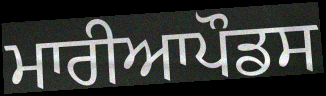
ਮਾਰੀਆਪੌਡਸ